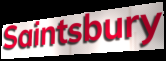
Saintsbury